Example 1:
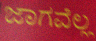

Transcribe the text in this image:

ಜಾಗವೆಲ್ಲ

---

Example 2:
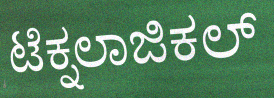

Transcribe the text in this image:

ಟೆಕ್ನಲಾಜಿಕಲ್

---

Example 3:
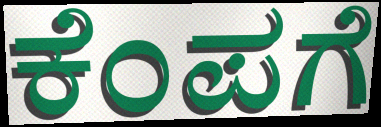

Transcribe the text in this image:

ಕೆಂಪಗೆ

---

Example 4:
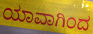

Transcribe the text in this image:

ಯಾವಾಗಿಂದ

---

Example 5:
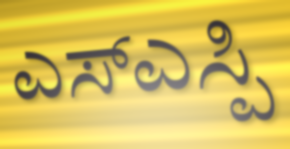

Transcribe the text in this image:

ಎಸ್ಎಸ್ಪಿ